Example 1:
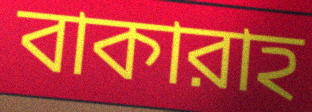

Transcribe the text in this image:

বাকারাহ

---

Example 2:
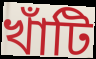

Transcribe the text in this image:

খাঁটি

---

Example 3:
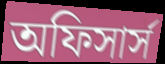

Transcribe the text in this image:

অফিসার্স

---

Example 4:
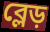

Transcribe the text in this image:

ব্লেড়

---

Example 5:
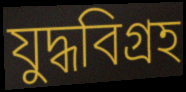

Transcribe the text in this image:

যুদ্ধবিগ্রহ